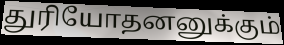
துரியோதனனுக்கும்